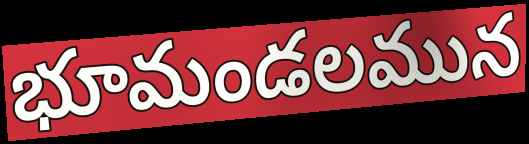
భూమండలమున